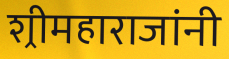
श्रीमहाराजांनी